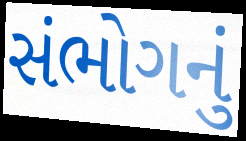
સંભોગનું